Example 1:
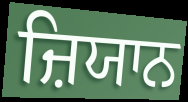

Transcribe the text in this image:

ਜ਼ਿਯਾਨ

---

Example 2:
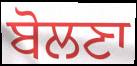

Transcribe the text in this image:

ਬੋਲਣਾ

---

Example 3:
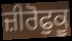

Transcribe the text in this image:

ਜ਼ੀਰੋਫੁਕੂ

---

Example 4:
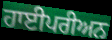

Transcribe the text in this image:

ਹਾਈਪਰੀਅਨ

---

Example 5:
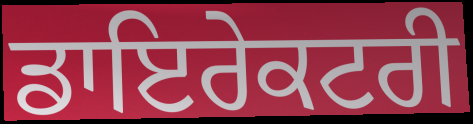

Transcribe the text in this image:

ਡਾਇਰੇਕਟਰੀ